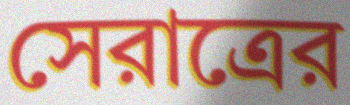
সেরাত্রের